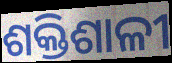
ଶକ୍ତିଶାଳୀ